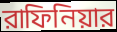
রাফিনিয়ার